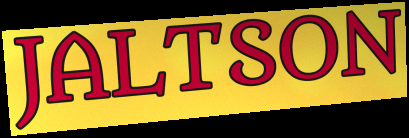
JALTSON